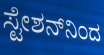
ಸ್ಟೇಶನ್‌ನಿಂದ